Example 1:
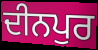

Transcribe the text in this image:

ਦੀਨਪੁਰ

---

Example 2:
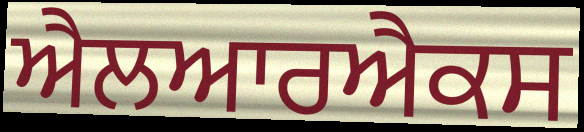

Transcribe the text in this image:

ਐਲਆਰਐਕਸ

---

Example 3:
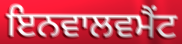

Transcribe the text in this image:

ਇਨਵਾਲਵਮੈਂਟ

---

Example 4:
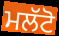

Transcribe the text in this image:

ਮਲੱਟੋ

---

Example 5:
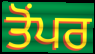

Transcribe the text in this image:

ਤੋਂਪਰ